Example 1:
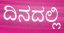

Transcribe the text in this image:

ದಿನದಲ್ಲಿ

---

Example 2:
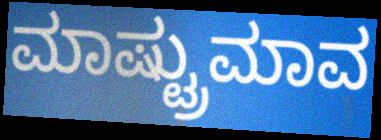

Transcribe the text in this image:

ಮಾಷ್ಟ್ರುಮಾವ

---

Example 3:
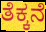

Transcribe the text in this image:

ತೆಕ್ಕನೆ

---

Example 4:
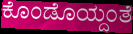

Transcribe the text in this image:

ಕೊಂಡೊಯ್ದಂತೆ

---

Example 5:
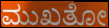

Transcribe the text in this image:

ಮುಖತೋ